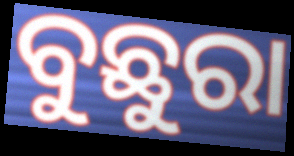
ବୁଛୁରା